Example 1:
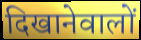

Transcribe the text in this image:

दिखानेवालों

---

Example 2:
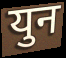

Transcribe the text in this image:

युन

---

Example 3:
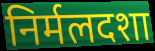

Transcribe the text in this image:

निर्मलदशा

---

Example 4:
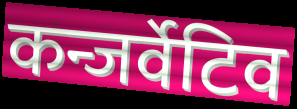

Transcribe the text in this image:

कन्जर्वेटिव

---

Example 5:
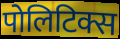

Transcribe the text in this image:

पोलिटिक्स